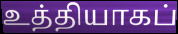
உத்தியாகப்